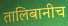
तालिबानीच